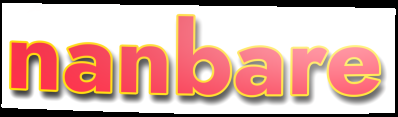
nanbare